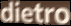
dietro